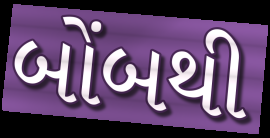
બોંબથી